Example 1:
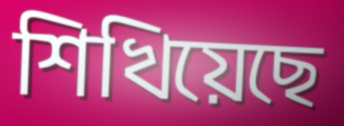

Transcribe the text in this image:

শিখিয়েছে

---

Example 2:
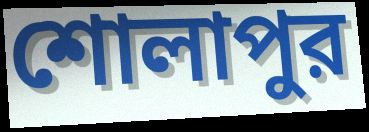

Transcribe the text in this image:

শোলাপুর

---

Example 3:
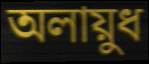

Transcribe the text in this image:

অলায়ুধ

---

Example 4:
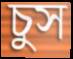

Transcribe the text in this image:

চুস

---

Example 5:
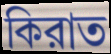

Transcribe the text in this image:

কিরাত